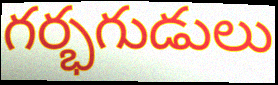
గర్భగుడులు